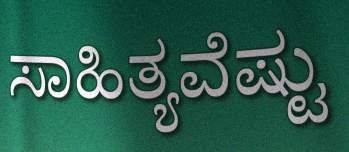
ಸಾಹಿತ್ಯವೆಷ್ಟು